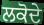
ਲਕੋਦੇ